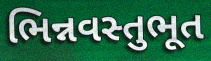
ભિન્નવસ્તુભૂત